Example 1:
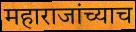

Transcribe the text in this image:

महाराजांच्याच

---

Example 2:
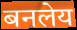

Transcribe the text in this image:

बनलेय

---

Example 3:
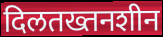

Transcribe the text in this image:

दिलतख्तनशीन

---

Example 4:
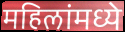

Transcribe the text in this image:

महिलांमध्ये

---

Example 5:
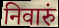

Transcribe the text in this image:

निवारुं